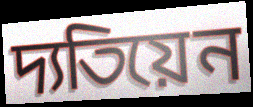
দ্যতিয়েন